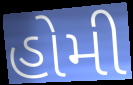
હોમી